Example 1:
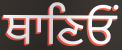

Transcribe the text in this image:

ਥਾਣਿਓਂ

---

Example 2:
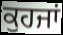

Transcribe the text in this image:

ਕੁਹਜਾਂ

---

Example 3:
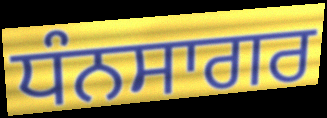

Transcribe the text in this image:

ਧੰਨਸਾਗਰ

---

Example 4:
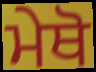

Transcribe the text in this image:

ਮੇਥੋ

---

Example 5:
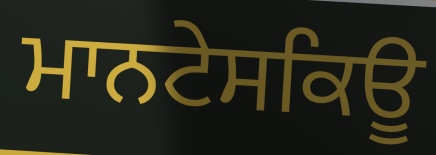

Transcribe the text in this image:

ਮਾਨਟੇਸਕਿਊ